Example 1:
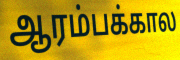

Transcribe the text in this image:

ஆரம்பக்கால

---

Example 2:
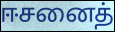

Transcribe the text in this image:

ஈசனைத்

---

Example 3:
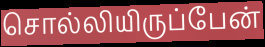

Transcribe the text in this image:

சொல்லியிருப்பேன்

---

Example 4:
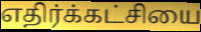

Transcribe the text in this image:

எதிர்க்கட்சியை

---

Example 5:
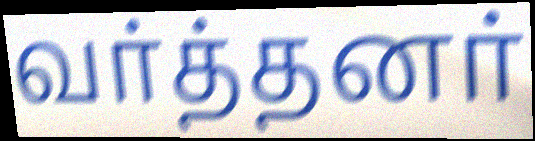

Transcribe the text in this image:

வர்த்தனர்